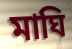
মাঘি